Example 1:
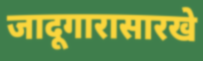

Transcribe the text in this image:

जादूगारासारखे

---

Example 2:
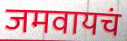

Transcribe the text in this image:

जमवायचं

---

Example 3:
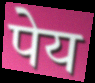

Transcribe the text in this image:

पेय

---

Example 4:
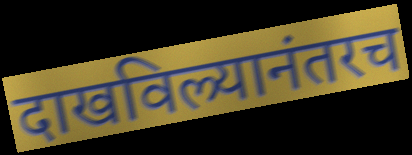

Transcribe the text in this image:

दाखविल्यानंतरच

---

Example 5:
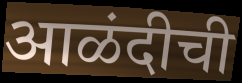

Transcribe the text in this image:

आळंदीची